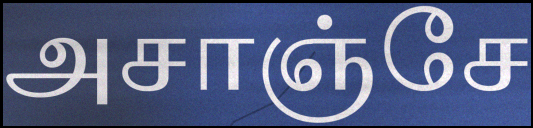
அசாஞ்சே